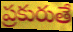
ప్రకురుతే